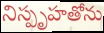
నిస్పృహతోను